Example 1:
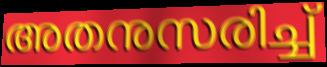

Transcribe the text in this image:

അതനുസരിച്ച്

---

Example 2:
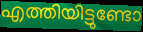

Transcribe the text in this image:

എത്തിയിട്ടുണ്ടോ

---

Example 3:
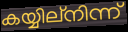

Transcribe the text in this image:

കയ്യില്നിന്ന്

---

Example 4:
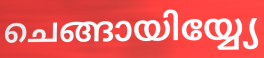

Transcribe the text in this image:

ചെങ്ങായിയ്യ്യേ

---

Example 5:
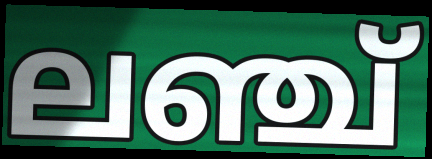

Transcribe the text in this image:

ലഞ്ച്